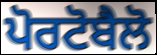
ਪੋਰਟੋਬੈਲੋ